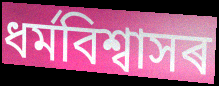
ধৰ্মবিশ্বাসৰ